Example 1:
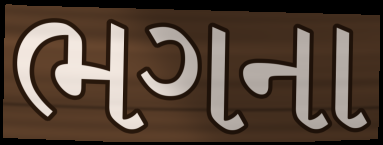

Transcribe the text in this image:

ભગના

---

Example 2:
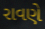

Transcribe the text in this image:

રાવણે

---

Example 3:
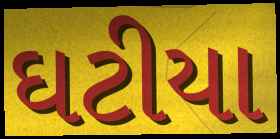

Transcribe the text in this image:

ઘટીયા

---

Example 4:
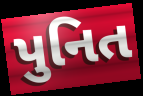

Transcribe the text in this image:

પુનિત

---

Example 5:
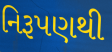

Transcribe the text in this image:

નિરૂપણથી